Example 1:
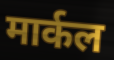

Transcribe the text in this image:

मार्कल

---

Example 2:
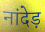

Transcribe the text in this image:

नांदेड़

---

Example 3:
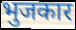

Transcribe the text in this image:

भुजकार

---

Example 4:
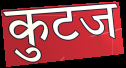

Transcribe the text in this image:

कुटज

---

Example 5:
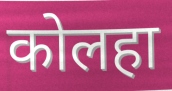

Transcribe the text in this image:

कोलहा